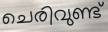
ചെരിവുണ്ട്